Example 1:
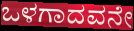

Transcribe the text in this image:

ಒಳಗಾದವನೇ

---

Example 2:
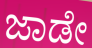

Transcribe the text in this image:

ಜಾಡೇ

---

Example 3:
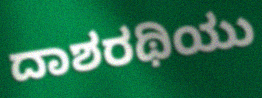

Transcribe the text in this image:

ದಾಶರಥಿಯು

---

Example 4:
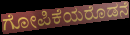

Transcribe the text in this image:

ಗೋಪಿಕೆಯರೊಡನೆ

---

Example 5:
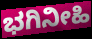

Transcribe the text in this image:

ಭಗಿನೀಹಿ